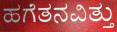
ಹಗೆತನವಿತ್ತು